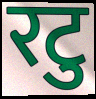
रटु